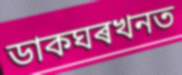
ডাকঘৰখনত